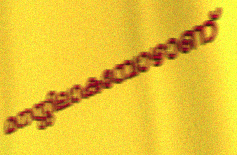
മനസ്സിലാകുമ്പോഴാണ്